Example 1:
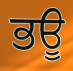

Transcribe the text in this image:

ਭਊ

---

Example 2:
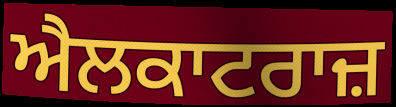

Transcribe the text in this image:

ਐਲਕਾਟਰਾਜ਼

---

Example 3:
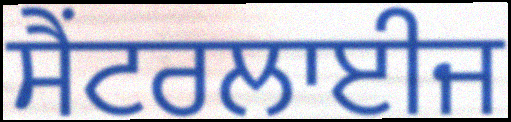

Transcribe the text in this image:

ਸੈਂਟਰਲਾਈਜ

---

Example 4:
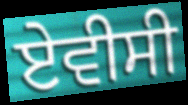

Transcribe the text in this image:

ਏਵੀਸੀ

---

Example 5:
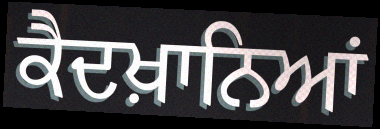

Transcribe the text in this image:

ਕੈਦਖ਼ਾਨਿਆਂ